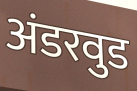
अंडरवुड